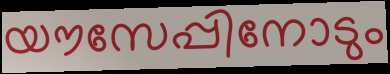
യൗസേപ്പിനോടും